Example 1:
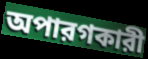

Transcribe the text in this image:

অপারগকারী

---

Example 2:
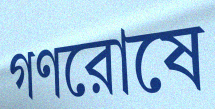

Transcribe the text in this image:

গণরোষে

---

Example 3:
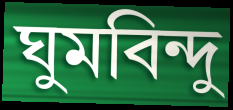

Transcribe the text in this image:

ঘুমবিন্দু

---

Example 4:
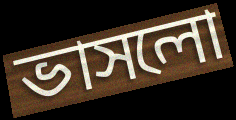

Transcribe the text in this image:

ভাসলো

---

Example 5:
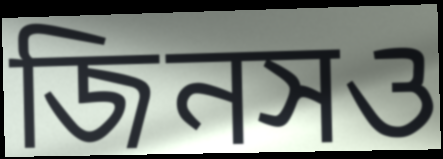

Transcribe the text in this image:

জিনসও